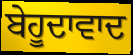
ਬੇਹੂਦਾਵਾਦ